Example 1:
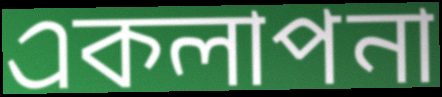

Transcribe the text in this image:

একলাপনা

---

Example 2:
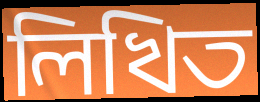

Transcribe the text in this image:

লিখিত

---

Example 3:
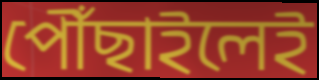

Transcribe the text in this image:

পৌঁছাইলেই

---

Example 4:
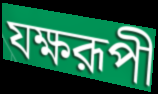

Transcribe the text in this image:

যক্ষরূপী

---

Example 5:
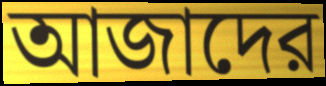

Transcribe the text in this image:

আজাদের